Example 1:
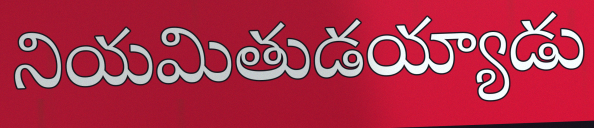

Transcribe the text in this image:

నియమితుడయ్యాడు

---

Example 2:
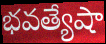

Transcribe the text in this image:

భవత్యేషా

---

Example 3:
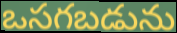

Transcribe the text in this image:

ఒసగబడును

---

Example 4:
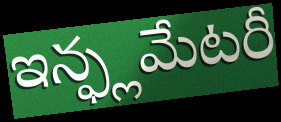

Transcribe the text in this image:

ఇన్ఫ్లమేటరీ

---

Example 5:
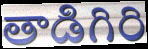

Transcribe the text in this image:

తాడిగిరి